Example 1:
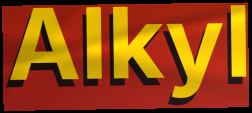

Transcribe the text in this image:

Alkyl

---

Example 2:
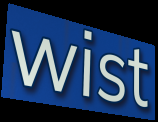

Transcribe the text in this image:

wist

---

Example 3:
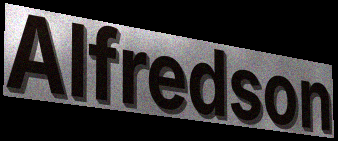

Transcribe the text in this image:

Alfredson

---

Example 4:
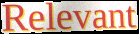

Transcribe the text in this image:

Relevant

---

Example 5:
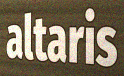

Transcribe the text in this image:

altaris